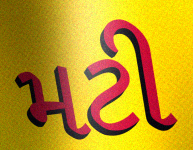
મટી